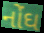
નોંઘ